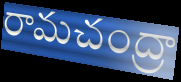
రామచంద్రా